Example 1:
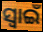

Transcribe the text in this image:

ସ୍ଵାଇଁ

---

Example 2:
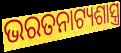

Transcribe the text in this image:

ଭରତନାଟ୍ୟଶାସ୍ତ୍ର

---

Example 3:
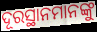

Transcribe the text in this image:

ଦୂରସ୍ଥାନମାନଙ୍କୁ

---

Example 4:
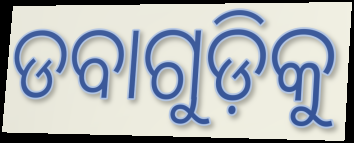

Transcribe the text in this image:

ଡବାଗୁଡ଼ିକୁ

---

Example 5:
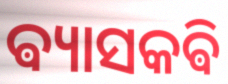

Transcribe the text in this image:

ଵ୍ୟାସକଵି